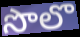
సొలొ